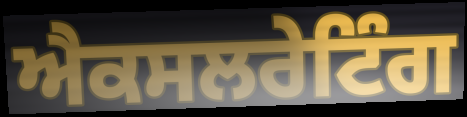
ਐਕਸਲਰੇਟਿੰਗ